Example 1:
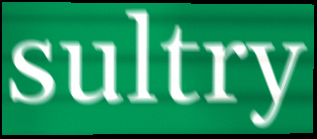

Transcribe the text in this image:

sultry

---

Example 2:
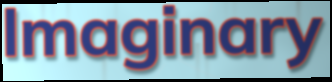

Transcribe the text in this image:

Imaginary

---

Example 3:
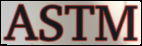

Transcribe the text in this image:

ASTM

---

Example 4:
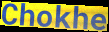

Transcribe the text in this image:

Chokhe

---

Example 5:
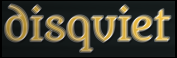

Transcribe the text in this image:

disquiet